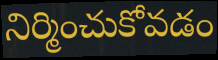
నిర్మించుకోవడం